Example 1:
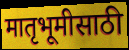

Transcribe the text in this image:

मातृभूमीसाठी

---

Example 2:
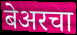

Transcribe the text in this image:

बेअरचा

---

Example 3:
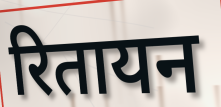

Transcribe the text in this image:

रितायन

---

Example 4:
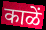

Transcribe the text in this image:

काळें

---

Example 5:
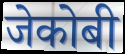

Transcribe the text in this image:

जेकोबी